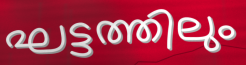
ഘട്ടത്തിലും